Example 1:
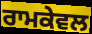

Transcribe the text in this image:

ਰਾਮਕੇਵਲ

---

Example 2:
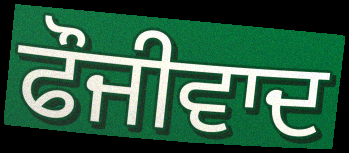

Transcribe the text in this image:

ਫੌਜੀਵਾਦ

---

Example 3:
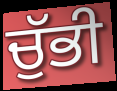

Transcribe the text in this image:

ਚੁੱਭੀ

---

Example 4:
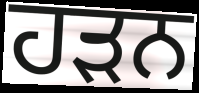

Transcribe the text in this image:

ਹੜਨ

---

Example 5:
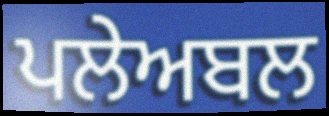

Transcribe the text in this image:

ਪਲੇਅਬਲ